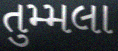
તુમ્મલા